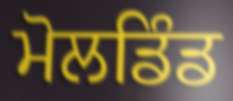
ਮੋਲਡਿੰਡ